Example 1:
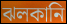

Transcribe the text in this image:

ঝলকানি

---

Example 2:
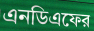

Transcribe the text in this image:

এনডিএফের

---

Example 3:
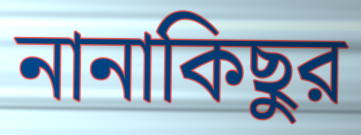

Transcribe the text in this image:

নানাকিছুর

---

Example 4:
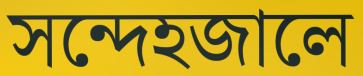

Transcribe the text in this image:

সন্দেহজালে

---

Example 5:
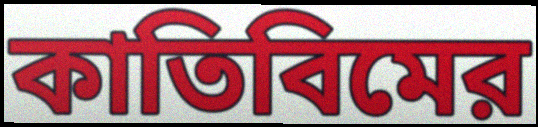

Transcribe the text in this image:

কাতিবিমের